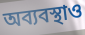
অব্যবস্থাও